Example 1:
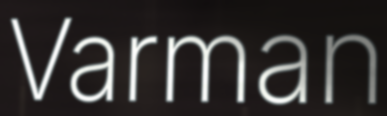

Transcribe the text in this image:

Varman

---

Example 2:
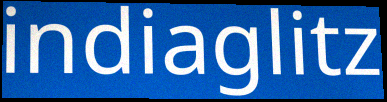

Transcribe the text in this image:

indiaglitz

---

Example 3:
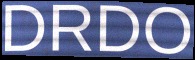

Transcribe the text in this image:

DRDO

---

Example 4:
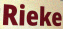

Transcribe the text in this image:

Rieke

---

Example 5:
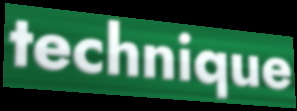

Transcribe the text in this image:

technique